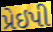
પ્રેઇપી